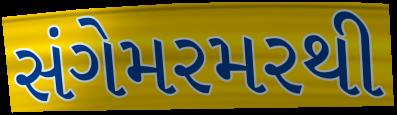
સંગેમરમરથી